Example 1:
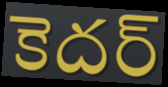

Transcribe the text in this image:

కెదర్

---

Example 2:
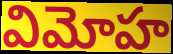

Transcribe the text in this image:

విమోహ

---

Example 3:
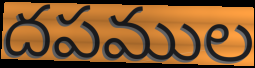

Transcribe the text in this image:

దపముల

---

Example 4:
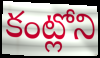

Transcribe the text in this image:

కంట్లోని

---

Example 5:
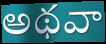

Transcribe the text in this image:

అథవా